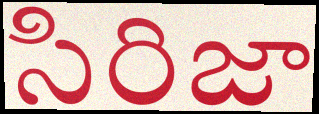
సిరిజా